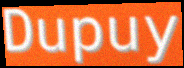
Dupuy